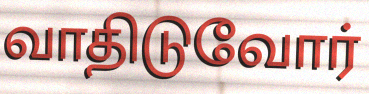
வாதிடுவோர்